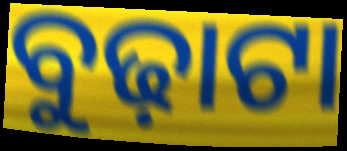
ବୁଢ଼ାଟା